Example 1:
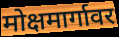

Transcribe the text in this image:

मोक्षमार्गावर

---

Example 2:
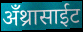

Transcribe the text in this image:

अँथ्रासाईट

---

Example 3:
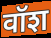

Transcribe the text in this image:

वॉश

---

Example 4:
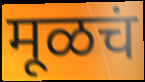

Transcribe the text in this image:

मूळचं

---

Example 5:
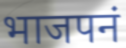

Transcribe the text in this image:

भाजपनं